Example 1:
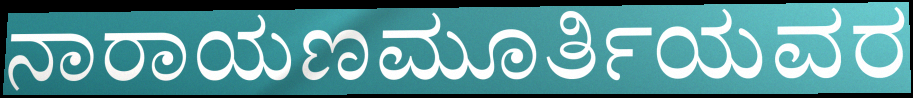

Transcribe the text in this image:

ನಾರಾಯಣಮೂರ್ತಿಯವರ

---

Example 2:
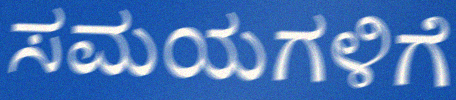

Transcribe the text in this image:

ಸಮಯಗಳಿಗೆ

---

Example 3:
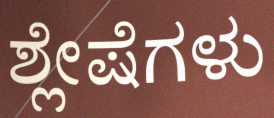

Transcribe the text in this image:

ಶ್ಲೇಷೆಗಳು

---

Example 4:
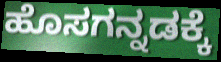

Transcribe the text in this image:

ಹೊಸಗನ್ನಡಕ್ಕೆ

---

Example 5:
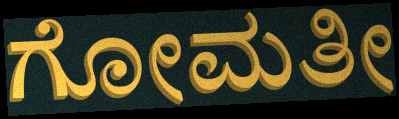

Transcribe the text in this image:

ಗೋಮತೀ